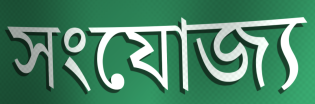
সংযোজ্য